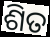
ଶିତ